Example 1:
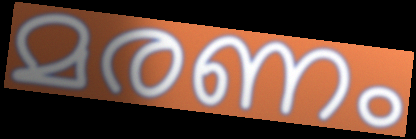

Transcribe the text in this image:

മരണം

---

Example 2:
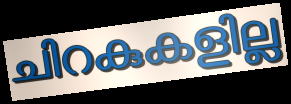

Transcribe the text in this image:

ചിറകുകളില്ല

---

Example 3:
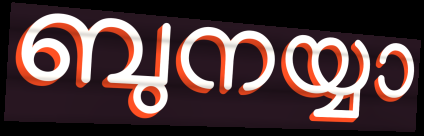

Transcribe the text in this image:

ബുനയ്യാ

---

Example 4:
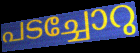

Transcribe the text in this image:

പടച്ചോറു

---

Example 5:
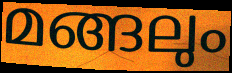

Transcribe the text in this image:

മങ്ങലും